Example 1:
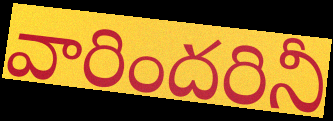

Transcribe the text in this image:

వారిందరినీ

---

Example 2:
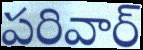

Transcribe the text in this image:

పరివార్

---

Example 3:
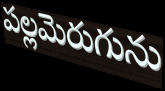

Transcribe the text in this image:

పల్లమెరుగును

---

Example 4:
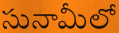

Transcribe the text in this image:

సునామీలో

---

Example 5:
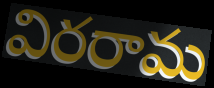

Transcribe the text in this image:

విరరామ